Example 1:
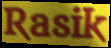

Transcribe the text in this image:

Rasik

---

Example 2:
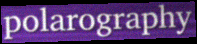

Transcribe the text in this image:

polarography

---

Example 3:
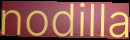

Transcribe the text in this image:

nodilla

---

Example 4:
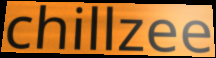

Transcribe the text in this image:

chillzee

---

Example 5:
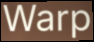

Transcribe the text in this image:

Warp